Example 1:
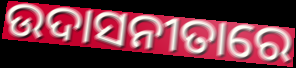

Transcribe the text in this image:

ଉଦାସନୀତାରେ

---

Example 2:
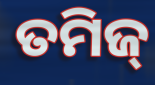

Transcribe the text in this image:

ତମିଜ୍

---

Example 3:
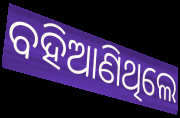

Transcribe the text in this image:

ବହିଆଣିଥିଲେ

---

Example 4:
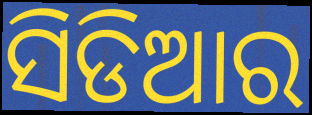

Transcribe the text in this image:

ସିଡିଆର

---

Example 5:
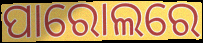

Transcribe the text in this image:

ପାରୋଲରେ